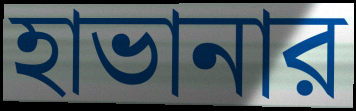
হাভানার